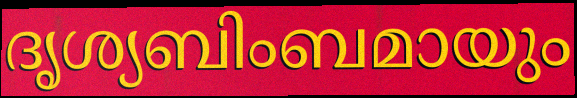
ദൃശ്യബിംബമായും